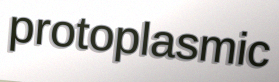
protoplasmic